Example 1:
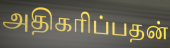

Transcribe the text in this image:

அதிகரிப்பதன்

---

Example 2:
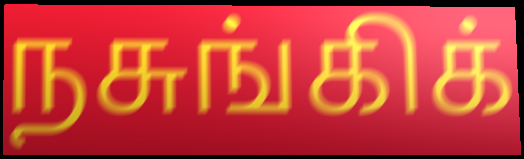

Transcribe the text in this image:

நசுங்கிக்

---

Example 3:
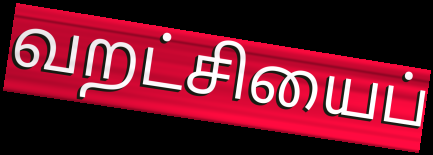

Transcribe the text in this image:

வறட்சியைப்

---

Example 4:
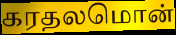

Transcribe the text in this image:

கரதலமொன்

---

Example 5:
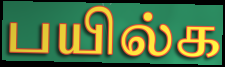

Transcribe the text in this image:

பயில்க